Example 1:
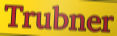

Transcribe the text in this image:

Trubner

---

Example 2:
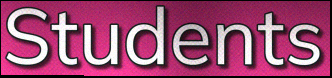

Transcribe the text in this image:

Students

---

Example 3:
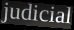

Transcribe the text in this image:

judicial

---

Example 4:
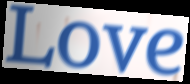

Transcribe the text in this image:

Love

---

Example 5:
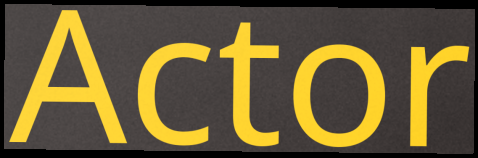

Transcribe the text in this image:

Actor